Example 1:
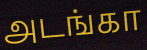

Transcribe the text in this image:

அடங்கா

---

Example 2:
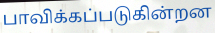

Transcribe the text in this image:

பாவிக்கப்படுகின்றன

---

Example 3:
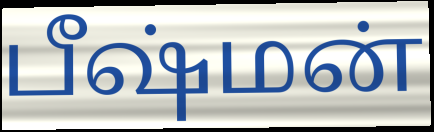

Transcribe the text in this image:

பீஷ்மன்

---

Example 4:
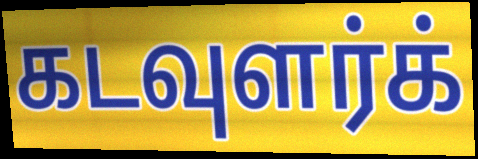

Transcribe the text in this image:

கடவுளர்க்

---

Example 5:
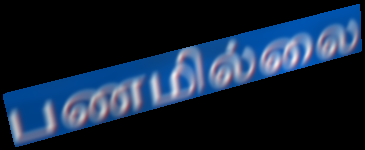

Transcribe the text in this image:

பணமில்லை